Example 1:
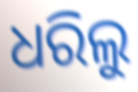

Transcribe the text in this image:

ଧରିଲୁ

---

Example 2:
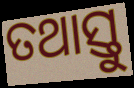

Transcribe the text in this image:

ତଥାସ୍ତୁ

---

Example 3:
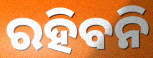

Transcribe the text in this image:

ରହିବନି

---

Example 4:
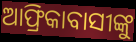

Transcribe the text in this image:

ଆଫ୍ରିକାବାସୀଙ୍କୁ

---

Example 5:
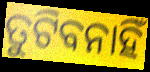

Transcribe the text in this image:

ତୁଟିବନାହିଁ